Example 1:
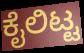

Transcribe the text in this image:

ಕೈಲಿಟ್ಟ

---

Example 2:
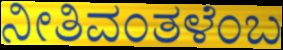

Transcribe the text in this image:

ನೀತಿವಂತಳೆಂಬ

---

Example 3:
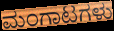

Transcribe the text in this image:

ಮಂಗಾಟಗಳು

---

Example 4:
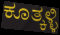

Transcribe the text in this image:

ಕೂತ್ಕಳ್ಳಿ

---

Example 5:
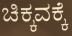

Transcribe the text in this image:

ಚಿಕ್ಕವಕ್ಕೆ